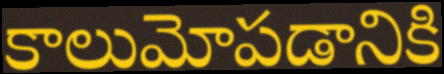
కాలుమోపడానికి